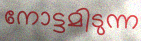
നോട്ടമിടുന്ന